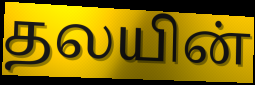
தலயின்